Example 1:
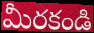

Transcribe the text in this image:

మీరకండి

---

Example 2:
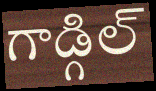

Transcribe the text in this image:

గాడ్గిల్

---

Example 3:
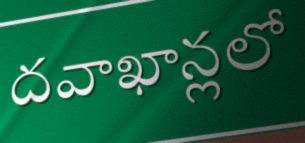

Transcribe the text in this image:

దవాఖాన్లలో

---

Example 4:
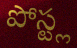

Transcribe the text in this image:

పోస్ట్ల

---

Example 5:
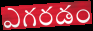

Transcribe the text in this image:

ఎగరడం